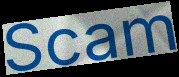
Scam